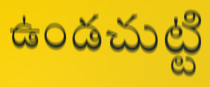
ఉండచుట్టి